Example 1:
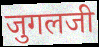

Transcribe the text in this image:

जुगलजी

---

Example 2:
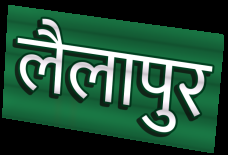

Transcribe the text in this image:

लैलापुर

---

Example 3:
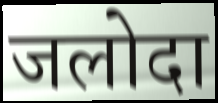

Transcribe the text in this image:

जलोदा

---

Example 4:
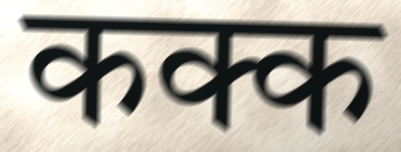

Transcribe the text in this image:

कक्क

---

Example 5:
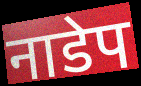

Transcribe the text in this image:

नाडेप